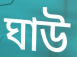
ঘাউ